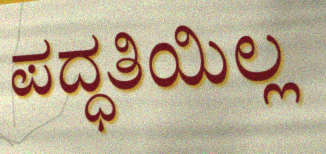
ಪದ್ಧತಿಯಿಲ್ಲ